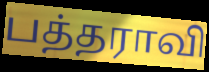
பத்தராவி